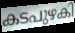
കടപുഴകി